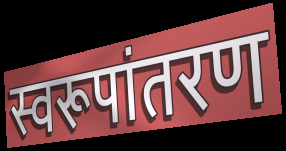
स्वरूपांतरण